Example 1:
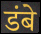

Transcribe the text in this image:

डंबे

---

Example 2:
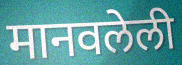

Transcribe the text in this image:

मानवलेली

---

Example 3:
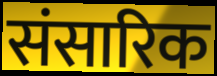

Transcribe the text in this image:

संसारिक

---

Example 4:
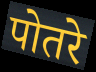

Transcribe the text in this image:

पोतरे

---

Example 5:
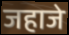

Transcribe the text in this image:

जहाजे